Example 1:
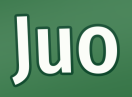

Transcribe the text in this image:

Juo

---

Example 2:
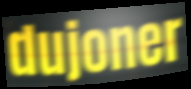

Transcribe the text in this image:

dujoner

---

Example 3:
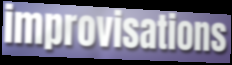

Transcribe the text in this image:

improvisations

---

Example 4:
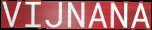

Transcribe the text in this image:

VIJNANA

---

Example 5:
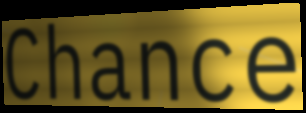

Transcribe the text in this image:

Chance